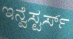
ಇನ್ವೆಸ್ಟರ್ಸ್